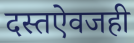
दस्तऐवजही